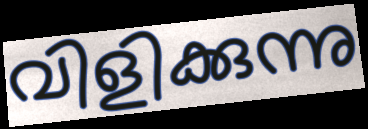
വിളിക്കുന്നു